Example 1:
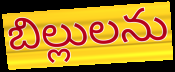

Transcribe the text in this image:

బిల్లులను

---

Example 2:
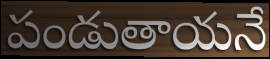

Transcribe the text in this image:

పండుతాయనే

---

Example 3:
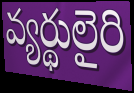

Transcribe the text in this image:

వ్యర్థులైరి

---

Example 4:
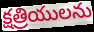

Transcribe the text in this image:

క్షత్రియులను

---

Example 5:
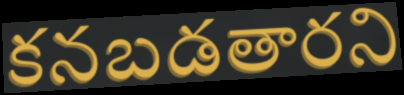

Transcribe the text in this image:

కనబడతారని